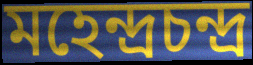
মহেন্দ্রচন্দ্র